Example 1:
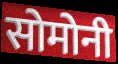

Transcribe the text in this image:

सोमोनी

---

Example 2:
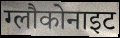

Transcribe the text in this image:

ग्लौकोनाइट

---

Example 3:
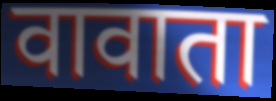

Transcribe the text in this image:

वावाता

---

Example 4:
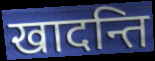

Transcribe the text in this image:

खादन्ति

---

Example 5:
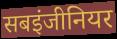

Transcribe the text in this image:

सबइंजीनियर